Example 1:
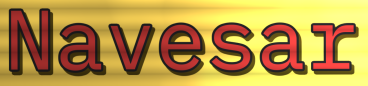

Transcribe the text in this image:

Navesar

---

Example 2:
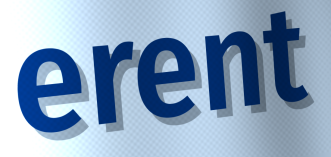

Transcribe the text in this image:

erent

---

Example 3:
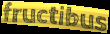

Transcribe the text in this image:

fructibus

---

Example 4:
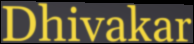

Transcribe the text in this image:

Dhivakar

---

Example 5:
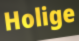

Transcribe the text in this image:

Holige